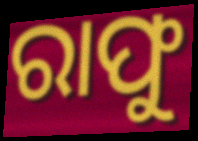
ରାଫୁ